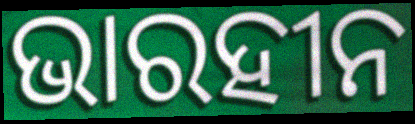
ଭାରହୀନ